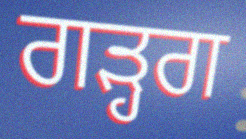
ਗੜ੍ਹਗ